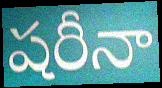
షరీనా